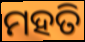
ମହତି